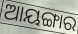
ଆୟଙ୍ଗାର